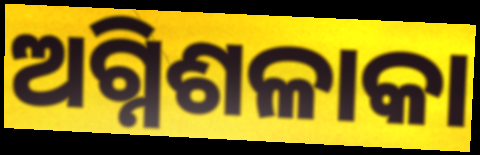
ଅଗ୍ନିଶଳାକା